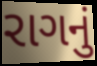
રાગનું